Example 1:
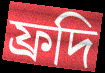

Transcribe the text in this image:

ফ্রদি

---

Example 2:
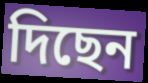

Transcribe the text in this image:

দিছেন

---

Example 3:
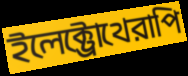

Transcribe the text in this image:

ইলেক্ট্রোথেরাপি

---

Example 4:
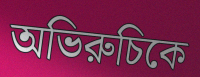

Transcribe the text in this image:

অভিরুচিকে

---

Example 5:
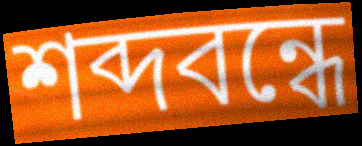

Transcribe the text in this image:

শব্দবন্ধে